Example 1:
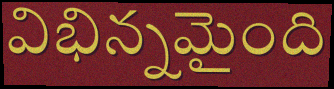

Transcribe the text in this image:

విభిన్నమైంది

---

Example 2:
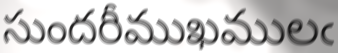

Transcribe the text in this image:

సుందరీముఖములఁ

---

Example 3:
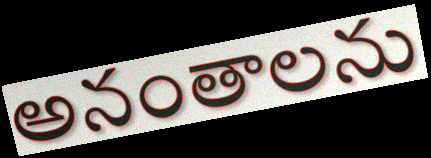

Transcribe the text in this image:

అనంతాలను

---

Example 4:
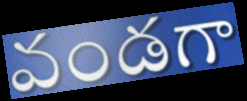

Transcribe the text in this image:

వండగా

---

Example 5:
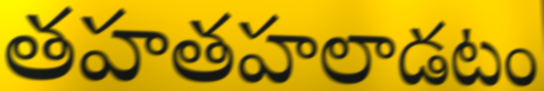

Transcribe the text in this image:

తహతహలాడటం